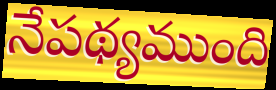
నేపథ్యముంది